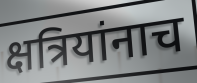
क्षत्रियांनाच